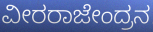
ವೀರರಾಜೇಂದ್ರನ